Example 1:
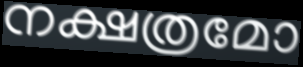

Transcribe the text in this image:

നക്ഷത്രമോ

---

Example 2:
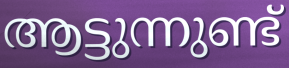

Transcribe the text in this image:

ആട്ടുന്നുണ്ട്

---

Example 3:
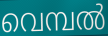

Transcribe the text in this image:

വെമ്പൽ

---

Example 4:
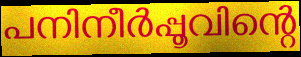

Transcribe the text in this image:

പനിനീർപ്പൂവിന്റെ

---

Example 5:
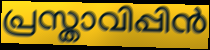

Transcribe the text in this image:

പ്രസ്താവിപ്പിൻ